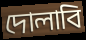
দোলাবি